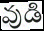
వుడి